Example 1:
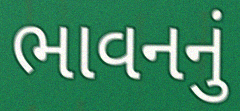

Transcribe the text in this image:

ભાવનનું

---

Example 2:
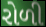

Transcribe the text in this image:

રોળી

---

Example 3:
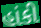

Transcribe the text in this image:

હાંકી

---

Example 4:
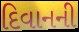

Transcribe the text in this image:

દિવાનની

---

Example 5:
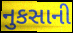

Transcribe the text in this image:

નુકસાની